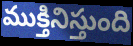
ముక్తినిస్తుంది